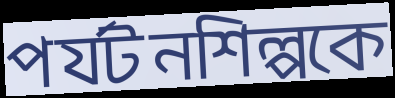
পর্যটনশিল্পকে